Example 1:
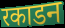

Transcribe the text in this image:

रकाडन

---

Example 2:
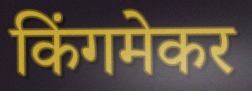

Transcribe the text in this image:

किंगमेकर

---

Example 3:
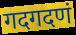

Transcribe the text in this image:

गदगदणं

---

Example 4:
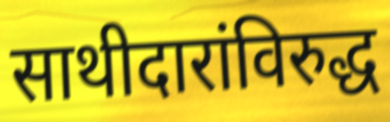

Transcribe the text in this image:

साथीदारांविरुद्ध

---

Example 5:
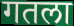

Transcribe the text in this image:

गतला